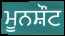
ਮੂਨਸ਼ੌਟ